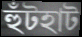
হুঁটহাট